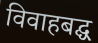
विवाहबद्घ